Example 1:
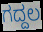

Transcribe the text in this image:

ಗದ್ದಲ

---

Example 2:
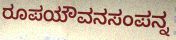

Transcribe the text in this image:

ರೂಪಯೌವನಸಂಪನ್ನ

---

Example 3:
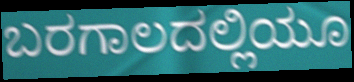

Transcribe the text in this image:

ಬರಗಾಲದಲ್ಲಿಯೂ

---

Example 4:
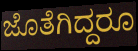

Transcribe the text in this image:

ಜೊತೆಗಿದ್ದರೂ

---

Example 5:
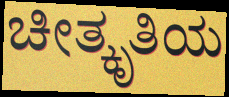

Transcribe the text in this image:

ಚೀತ್ಕೃತಿಯ